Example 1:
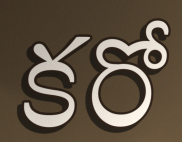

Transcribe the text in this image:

కరో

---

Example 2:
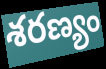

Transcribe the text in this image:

శరణ్యం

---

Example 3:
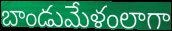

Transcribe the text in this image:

బాండుమేళంలాగా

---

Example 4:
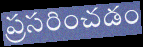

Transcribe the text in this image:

ప్రసరించడం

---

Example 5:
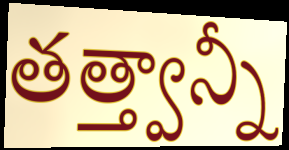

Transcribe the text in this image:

తత్త్వాన్నీ